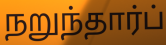
நறுந்தார்ப்